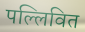
पल्लिवित